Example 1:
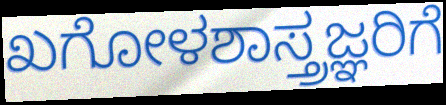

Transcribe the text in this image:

ಖಗೋಳಶಾಸ್ತ್ರಜ್ಞರಿಗೆ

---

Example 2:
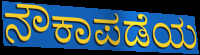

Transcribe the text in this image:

ನೌಕಾಪಡೆಯ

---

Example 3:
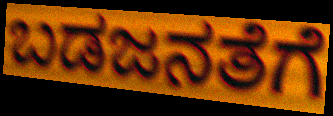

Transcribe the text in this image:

ಬಡಜನತೆಗೆ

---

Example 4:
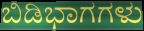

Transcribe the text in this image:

ಬಿಡಿಭಾಗಗಳು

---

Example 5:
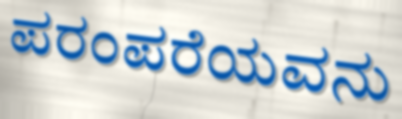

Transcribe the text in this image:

ಪರಂಪರೆಯವನು